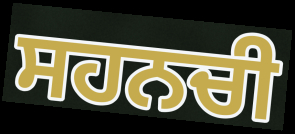
ਸਹਨਚੀ